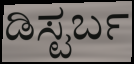
ಡಿಸ್ಟರ್ಬ